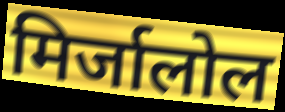
मिर्जालोल